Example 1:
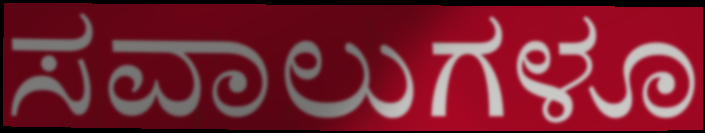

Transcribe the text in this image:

ಸವಾಲುಗಳೂ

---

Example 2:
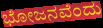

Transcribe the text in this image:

ಭೋಜನವೆಂದು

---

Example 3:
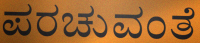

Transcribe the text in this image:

ಪರಚುವಂತೆ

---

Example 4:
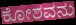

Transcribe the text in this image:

ಕೋಶವನು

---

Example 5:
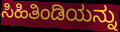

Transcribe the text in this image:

ಸಿಹಿತಿಂಡಿಯನ್ನು